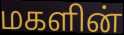
மகளின்